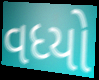
વધ્યો